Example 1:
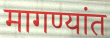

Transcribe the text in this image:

मागण्यांत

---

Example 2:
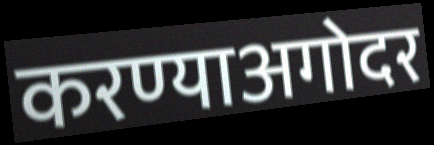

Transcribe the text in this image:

करण्याअगोदर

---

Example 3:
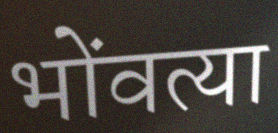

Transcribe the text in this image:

भोंवत्या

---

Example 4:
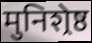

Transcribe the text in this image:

मुनिश्रेष्ठ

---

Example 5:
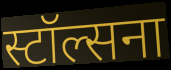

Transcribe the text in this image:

स्टॉल्सना